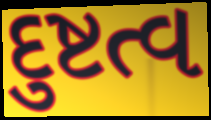
દુષ્ટત્વ